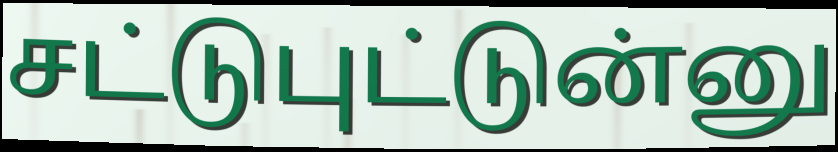
சட்டுபுட்டுன்னு